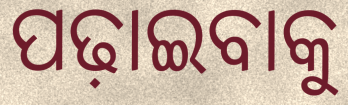
ପଢ଼ାଇବାକୁ